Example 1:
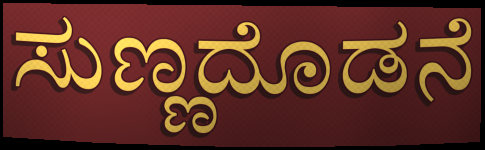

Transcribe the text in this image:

ಸುಣ್ಣದೊಡನೆ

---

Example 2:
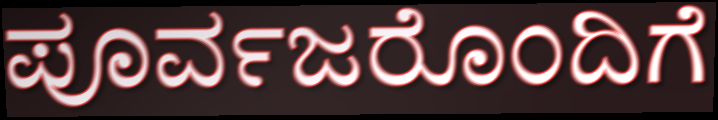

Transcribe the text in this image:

ಪೂರ್ವಜರೊಂದಿಗೆ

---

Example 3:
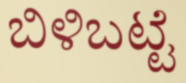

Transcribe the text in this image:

ಬಿಳಿಬಟ್ಟೆ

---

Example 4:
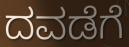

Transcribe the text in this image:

ದವಡೆಗೆ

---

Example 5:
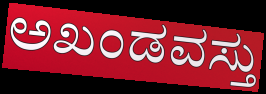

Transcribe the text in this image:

ಅಖಂಡವಸ್ತು